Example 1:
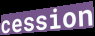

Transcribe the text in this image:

cession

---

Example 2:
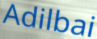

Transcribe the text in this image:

Adilbai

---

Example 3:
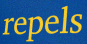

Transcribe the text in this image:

repels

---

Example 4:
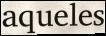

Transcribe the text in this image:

aqueles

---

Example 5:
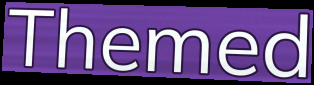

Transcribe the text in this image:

Themed